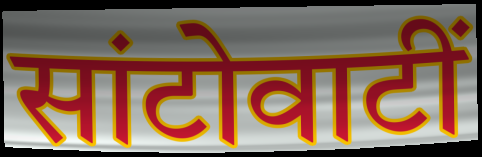
सांटोवाटीं